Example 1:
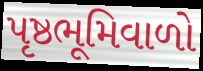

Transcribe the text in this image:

પૃષ્ઠભૂમિવાળો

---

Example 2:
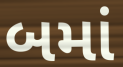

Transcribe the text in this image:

બમાં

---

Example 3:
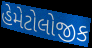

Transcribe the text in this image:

હેમેટોલોજીક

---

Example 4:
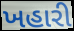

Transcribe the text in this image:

ખહારી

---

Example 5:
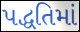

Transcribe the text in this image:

પદ્ધતિમાં